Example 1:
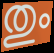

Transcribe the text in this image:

തും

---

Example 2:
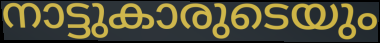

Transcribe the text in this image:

നാട്ടുകാരുടെയും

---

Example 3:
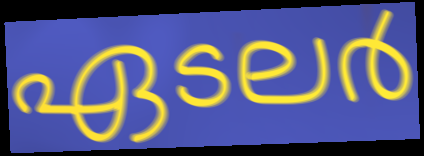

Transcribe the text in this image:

ഏടലർ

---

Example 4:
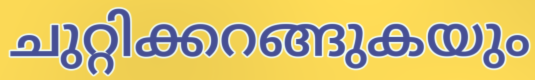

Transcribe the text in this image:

ചുറ്റിക്കറങ്ങുകയും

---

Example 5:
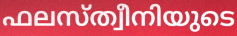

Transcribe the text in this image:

ഫലസ്ത്വീനിയുടെ